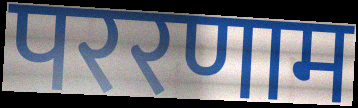
पररणाम